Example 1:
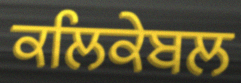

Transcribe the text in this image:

ਕਲਿਕੇਬਲ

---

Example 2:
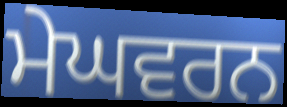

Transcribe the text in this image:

ਮੇਘਵਰਨ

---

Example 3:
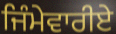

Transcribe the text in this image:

ਜਿੰਮੇਵਾਰੀਏ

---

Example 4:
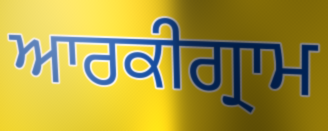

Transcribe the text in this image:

ਆਰਕੀਗ੍ਰਾਮ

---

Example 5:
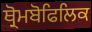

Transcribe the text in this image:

ਥ੍ਰੋਮਬੋਫਿਲਿਕ